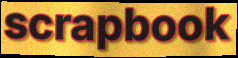
scrapbook